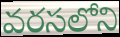
వరసలోని